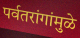
पर्वतरांगांमुळे